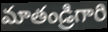
మాతండ్రిగారి